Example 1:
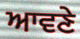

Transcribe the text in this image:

ਆਵਣੇ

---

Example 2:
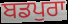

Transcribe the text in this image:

ਬਡਪੁਰਾ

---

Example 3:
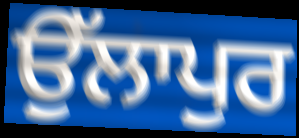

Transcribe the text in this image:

ਉੱਲਾਪੁਰ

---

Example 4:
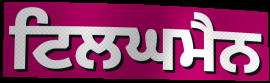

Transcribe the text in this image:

ਟਿਲਘਮੈਨ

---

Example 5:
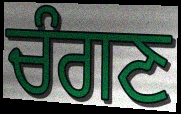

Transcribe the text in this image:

ਚੰਗਣ